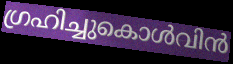
ഗ്രഹിച്ചുകൊൾവിൻ